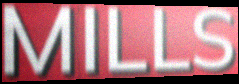
MILLS